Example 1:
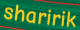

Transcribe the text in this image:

sharirik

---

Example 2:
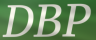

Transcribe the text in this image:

DBP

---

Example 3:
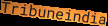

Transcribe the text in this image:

Tribuneindia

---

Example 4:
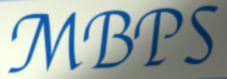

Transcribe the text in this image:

MBPS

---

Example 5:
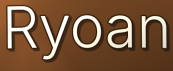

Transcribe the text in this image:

Ryoan